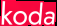
koda